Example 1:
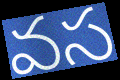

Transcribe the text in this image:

వస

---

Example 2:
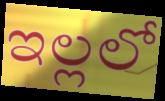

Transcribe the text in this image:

ఇల్లలో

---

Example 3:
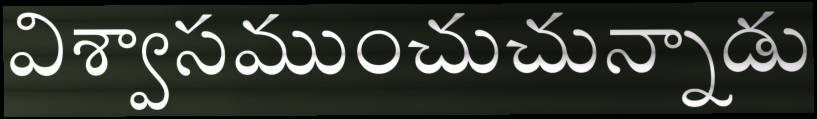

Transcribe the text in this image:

విశ్వాసముంచుచున్నాడు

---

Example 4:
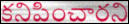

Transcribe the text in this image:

కనిపించారని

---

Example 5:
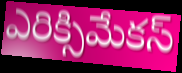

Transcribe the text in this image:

ఎరిక్సిమేకస్